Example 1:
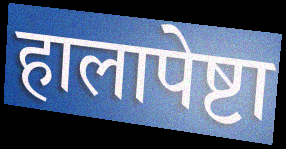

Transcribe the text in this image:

हालापेष्टा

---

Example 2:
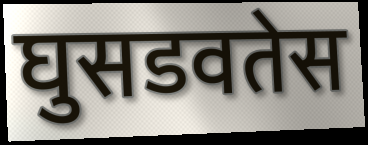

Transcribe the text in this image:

घुसडवतेस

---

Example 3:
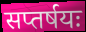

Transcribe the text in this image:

सप्तर्षयः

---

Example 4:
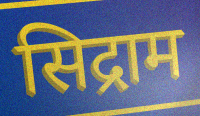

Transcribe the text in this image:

सिद्राम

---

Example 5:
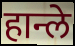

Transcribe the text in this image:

हान्ले